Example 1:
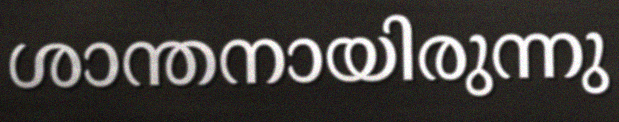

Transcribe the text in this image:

ശാന്തനായിരുന്നു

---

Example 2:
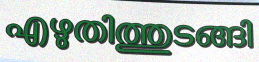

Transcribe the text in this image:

എഴുതിത്തുടങ്ങി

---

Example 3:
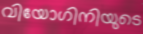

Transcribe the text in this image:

വിയോഗിനിയുടെ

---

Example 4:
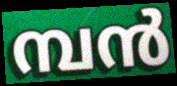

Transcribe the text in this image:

മ്പൻ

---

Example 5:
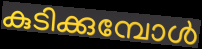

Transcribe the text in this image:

കുടിക്കുമ്പോൾ